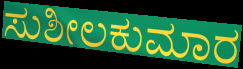
ಸುಶೀಲಕುಮಾರ